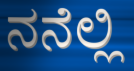
ನನೆಲ್ಲಿ